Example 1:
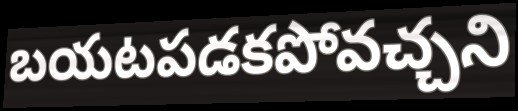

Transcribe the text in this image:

బయటపడకపోవచ్చని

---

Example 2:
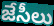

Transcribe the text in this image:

జేసీలు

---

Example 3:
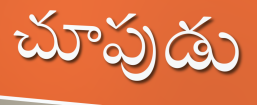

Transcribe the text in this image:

చూపుడు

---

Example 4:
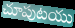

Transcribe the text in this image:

చూపుటయు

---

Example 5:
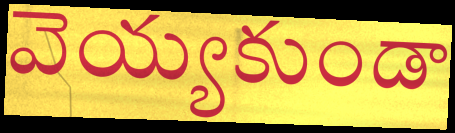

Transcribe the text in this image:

వెయ్యకుండా